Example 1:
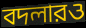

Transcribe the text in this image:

বদলারও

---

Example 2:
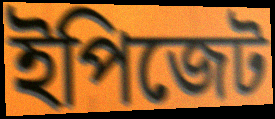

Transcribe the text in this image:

ইপিজেট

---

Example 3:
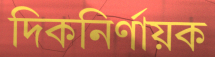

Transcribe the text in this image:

দিকনির্ণায়ক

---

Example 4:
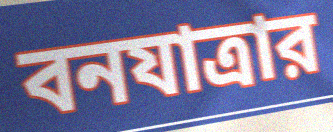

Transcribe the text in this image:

বনযাত্রার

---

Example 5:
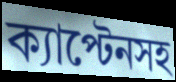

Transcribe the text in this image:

ক্যাপ্টেনসহ